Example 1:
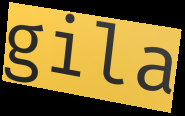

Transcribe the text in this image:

gila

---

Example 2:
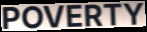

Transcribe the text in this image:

POVERTY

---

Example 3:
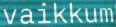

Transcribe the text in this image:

vaikkum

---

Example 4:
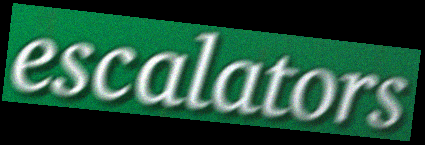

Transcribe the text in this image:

escalators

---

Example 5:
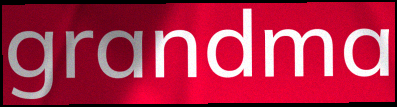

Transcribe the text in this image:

grandma